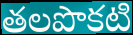
తలపొకటి